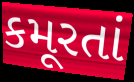
કમૂરતાં